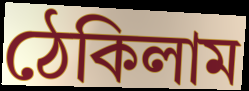
ঠেকিলাম